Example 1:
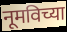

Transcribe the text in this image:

नूमविच्या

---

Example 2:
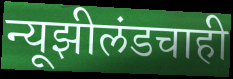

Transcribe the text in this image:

न्यूझीलंडचाही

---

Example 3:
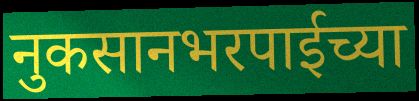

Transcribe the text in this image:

नुकसानभरपाईच्या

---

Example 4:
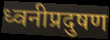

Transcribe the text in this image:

ध्वनीप्रदुषण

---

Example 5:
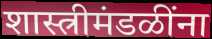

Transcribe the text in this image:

शास्त्रीमंडळींना